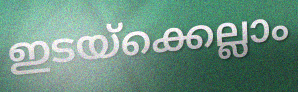
ഇടയ്ക്കെല്ലാം